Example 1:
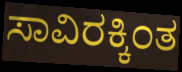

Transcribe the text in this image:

ಸಾವಿರಕ್ಕಿಂತ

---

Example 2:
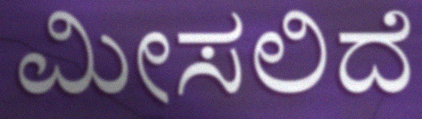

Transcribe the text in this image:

ಮೀಸಲಿದೆ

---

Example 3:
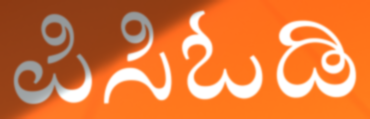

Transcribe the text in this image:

ಪಿಸಿಓಡಿ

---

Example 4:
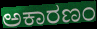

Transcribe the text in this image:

ಅಕಾರಣಂ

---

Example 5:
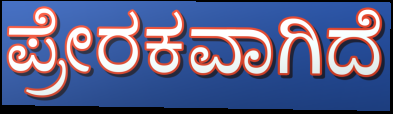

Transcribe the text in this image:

ಪ್ರೇರಕವಾಗಿದೆ